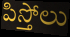
పిస్తోలు